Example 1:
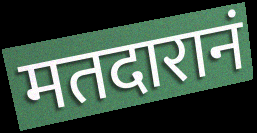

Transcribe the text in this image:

मतदारानं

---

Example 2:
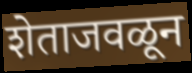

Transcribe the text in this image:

शेताजवळून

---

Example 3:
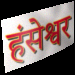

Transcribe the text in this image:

हंसेश्वर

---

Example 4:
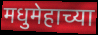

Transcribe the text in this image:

मधुमेहाच्या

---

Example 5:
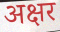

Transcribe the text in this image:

अक्षर